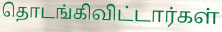
தொடங்கிவிட்டார்கள்